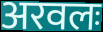
अरवलः